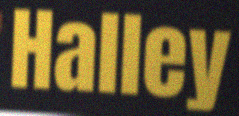
Halley